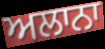
ਅਲਾਨਾ